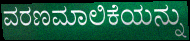
ವರಣಮಾಲಿಕೆಯನ್ನು